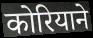
कोरियाने